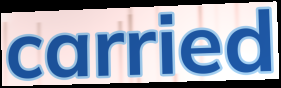
carried